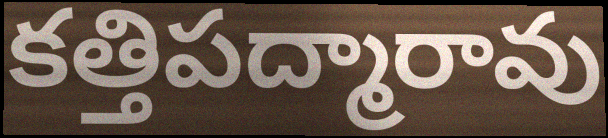
కత్తిపద్మారావు